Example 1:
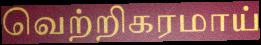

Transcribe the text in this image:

வெற்றிகரமாய்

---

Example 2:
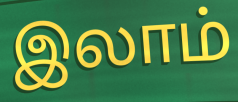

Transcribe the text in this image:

இலாம்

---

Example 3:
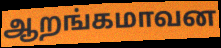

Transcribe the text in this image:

ஆறங்கமாவன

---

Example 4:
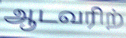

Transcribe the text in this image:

ஆடவரிற்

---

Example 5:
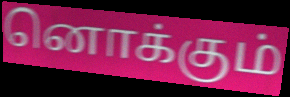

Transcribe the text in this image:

னொக்கும்